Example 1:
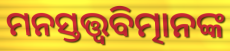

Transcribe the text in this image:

ମନସ୍ତତ୍ତ୍ବବିତ୍ମାନଙ୍କ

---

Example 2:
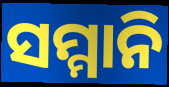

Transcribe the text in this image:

ସମ୍ମାନି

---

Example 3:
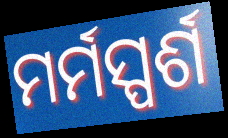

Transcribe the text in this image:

ମର୍ମସ୍ପର୍ଶ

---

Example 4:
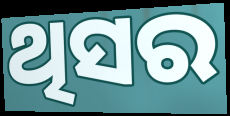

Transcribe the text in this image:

ଥିସର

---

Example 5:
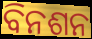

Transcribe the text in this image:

ବିନଶନ